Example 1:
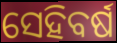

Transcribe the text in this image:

ସେହିବର୍ଷ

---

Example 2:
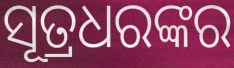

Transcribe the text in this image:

ସୂତ୍ରଧରଙ୍କର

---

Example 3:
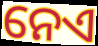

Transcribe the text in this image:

ନେଏ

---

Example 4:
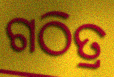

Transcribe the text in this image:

ଗଠିତ୍ର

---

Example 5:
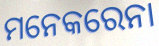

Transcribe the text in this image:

ମନେକରେନା